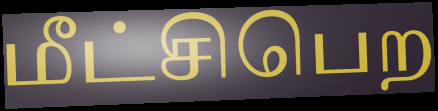
மீட்சிபெற